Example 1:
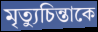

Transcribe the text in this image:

মৃত্যুচিন্তাকে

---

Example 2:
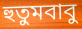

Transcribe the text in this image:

হুতুমবাবু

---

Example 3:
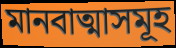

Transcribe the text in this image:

মানবাত্মাসমূহ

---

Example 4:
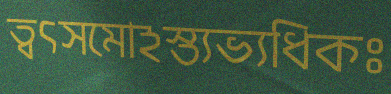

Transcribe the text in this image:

ত্বৎসমোঽস্ত্যভ্যধিকঃ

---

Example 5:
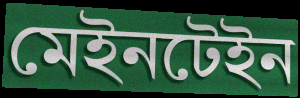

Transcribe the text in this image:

মেইনটেইন